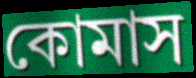
কোমাস